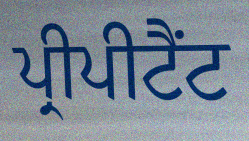
ਪ੍ਰੀਪੀਟੈਂਟ